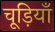
चूड़ियाँ